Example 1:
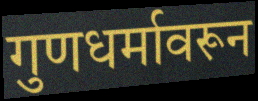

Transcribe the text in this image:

गुणधर्मावरून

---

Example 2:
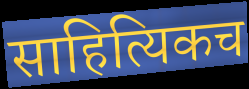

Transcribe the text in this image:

साहित्यिकच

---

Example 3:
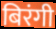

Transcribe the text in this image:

बिरंगी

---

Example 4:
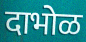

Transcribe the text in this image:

दाभोळ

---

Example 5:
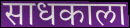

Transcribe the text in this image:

साधकाला